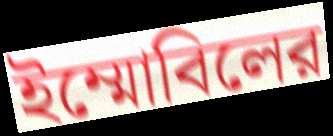
ইম্মোবিলের